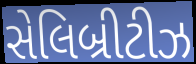
સેલિબ્રીટીઝ